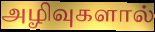
அழிவுகளால்